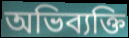
অভিব্যক্তি